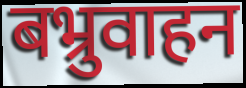
बभ्रुवाहन